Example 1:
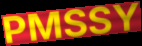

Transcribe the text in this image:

PMSSY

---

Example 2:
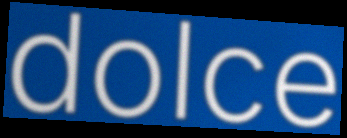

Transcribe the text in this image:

dolce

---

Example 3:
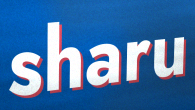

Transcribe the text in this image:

sharu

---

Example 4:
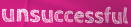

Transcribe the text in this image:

unsuccessful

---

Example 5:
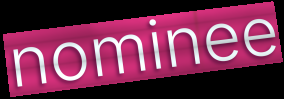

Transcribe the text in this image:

nominee